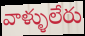
వాళ్ళులేరు